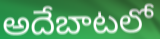
అదేబాటలో